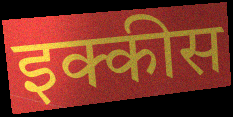
इक्‍कीस